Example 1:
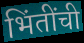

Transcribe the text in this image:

भिंतींची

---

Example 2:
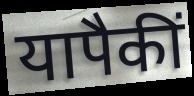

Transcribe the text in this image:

यापैकीं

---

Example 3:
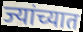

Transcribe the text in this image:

ज्यांच्यात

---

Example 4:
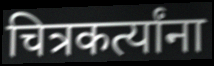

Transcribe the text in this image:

चित्रकर्त्यांना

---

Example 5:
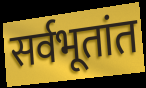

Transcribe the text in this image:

सर्वभूतांत